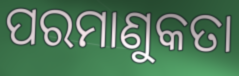
ପରମାଣୁକତା